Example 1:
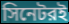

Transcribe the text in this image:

সিনেটরই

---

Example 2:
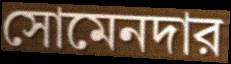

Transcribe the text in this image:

সোমেনদার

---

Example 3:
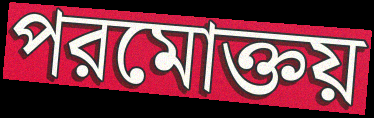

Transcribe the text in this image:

পরমোক্তয়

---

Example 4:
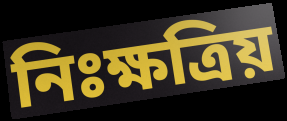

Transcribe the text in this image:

নিঃক্ষত্রিয়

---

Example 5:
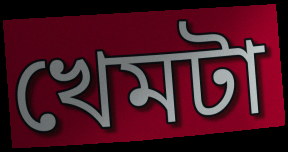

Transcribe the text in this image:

খেমটা